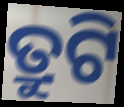
ତ୍ରୁଟି